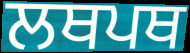
ਲਥਪਥ